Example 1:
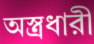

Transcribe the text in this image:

অস্ত্রধারী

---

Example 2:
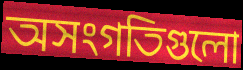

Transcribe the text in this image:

অসংগতিগুলো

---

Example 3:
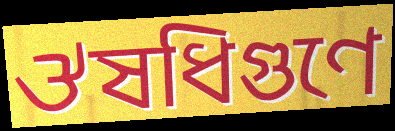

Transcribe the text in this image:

ঔষধিগুণে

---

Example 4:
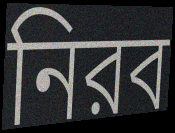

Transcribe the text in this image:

নিরব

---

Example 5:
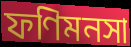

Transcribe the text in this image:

ফণিমনসা